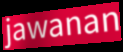
jawanan